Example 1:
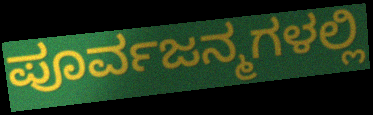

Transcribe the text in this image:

ಪೂರ್ವಜನ್ಮಗಳಲ್ಲಿ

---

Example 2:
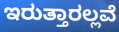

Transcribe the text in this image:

ಇರುತ್ತಾರಲ್ಲವೆ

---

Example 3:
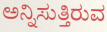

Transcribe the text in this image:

ಅನ್ನಿಸುತ್ತಿರುವ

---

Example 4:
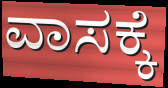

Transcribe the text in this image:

ವಾಸಕ್ಕೆ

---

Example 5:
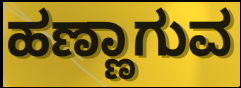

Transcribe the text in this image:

ಹಣ್ಣಾಗುವ